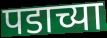
पडाच्या